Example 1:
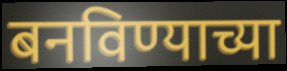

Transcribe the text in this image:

बनविण्याच्या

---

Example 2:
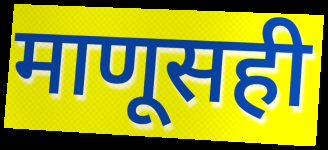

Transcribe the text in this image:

माणूसही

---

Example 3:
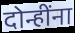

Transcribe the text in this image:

दोन्हींना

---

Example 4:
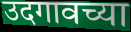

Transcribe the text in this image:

उदगावच्या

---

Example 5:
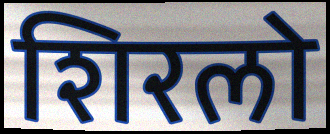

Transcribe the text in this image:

शिरलो